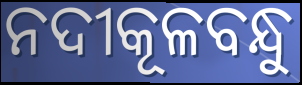
ନଦୀକୂଳବନ୍ଧୁ